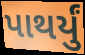
પાથર્યું